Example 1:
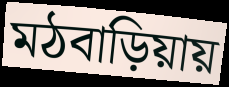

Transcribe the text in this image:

মঠবাড়িয়ায়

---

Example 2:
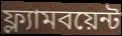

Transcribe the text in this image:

ফ্ল্যামবয়েন্ট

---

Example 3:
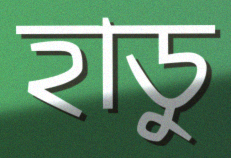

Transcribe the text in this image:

হাডু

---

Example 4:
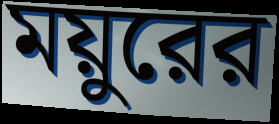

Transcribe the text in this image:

ময়ুরের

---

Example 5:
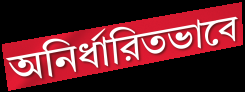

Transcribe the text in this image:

অনির্ধারিতভাবে